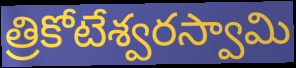
త్రికోటేశ్వరస్వామి